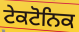
ਟੇਕਟੋਨਿਕ